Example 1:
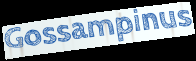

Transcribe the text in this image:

Gossampinus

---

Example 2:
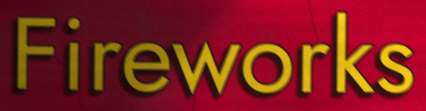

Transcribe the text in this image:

Fireworks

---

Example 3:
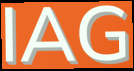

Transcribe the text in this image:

IAG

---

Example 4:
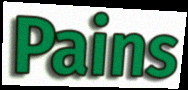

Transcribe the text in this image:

Pains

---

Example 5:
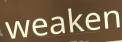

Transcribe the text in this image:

weaken